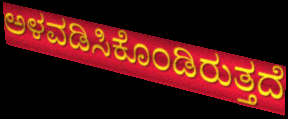
ಅಳವಡಿಸಿಕೊಂಡಿರುತ್ತದೆ